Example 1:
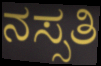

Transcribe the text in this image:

ನಸ್ಸತಿ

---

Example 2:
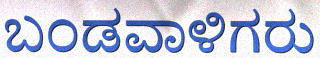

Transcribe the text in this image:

ಬಂಡವಾಳಿಗರು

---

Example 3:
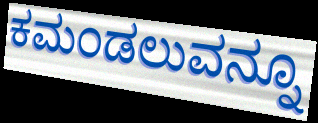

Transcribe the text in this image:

ಕಮಂಡಲುವನ್ನೂ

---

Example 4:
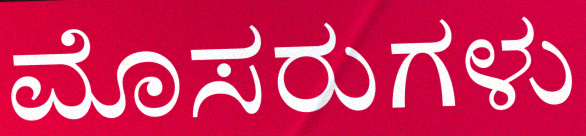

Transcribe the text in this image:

ಮೊಸರುಗಳು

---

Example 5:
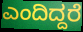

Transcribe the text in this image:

ಎಂದಿದ್ದರೆ